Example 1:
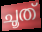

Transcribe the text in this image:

ചൂത്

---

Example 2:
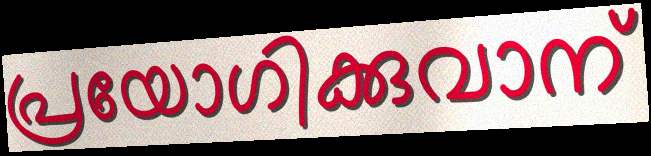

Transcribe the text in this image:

പ്രയോഗിക്കുവാന്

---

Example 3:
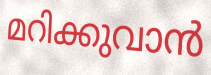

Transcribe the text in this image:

മറിക്കുവാൻ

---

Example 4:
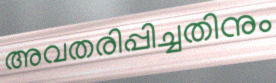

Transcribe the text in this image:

അവതരിപ്പിച്ചതിനും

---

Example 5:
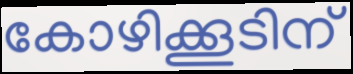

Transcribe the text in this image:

കോഴിക്കൂടിന്